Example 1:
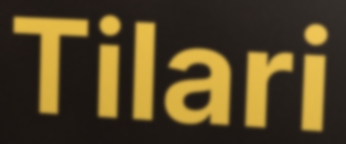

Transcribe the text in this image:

Tilari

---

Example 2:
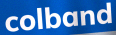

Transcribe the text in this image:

colband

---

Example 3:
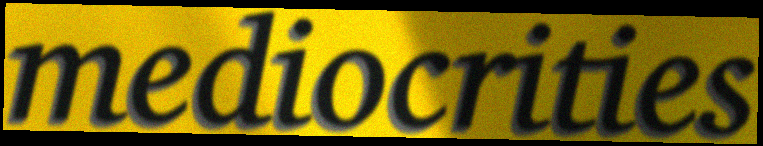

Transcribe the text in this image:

mediocrities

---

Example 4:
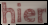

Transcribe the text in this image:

hier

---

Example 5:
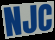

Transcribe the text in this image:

NJC